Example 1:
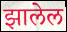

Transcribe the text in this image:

झालेल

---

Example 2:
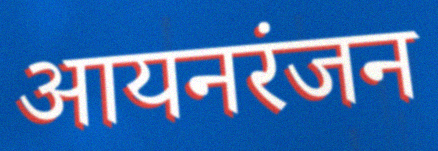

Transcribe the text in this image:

आयनरंजन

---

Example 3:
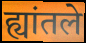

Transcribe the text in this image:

ह्यांतले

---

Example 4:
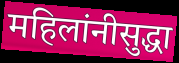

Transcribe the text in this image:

महिलांनीसुद्धा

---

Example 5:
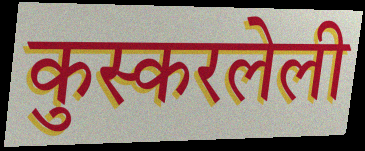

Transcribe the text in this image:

कुस्करलेली